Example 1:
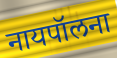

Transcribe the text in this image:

नायपॉलना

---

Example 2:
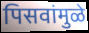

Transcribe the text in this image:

पिसवांमुळे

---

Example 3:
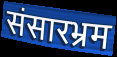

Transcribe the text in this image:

संसारभ्रम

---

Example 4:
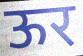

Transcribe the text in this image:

ऊर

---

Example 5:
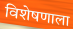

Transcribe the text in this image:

विशेषणाला